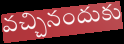
వచ్చినందుకు